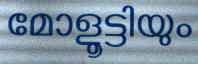
മോളൂട്ടിയും